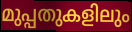
മുപ്പതുകളിലും